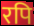
रपि